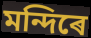
মন্দিৰে